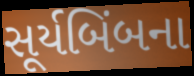
સૂર્યબિંબના